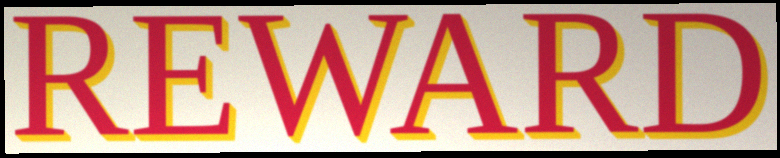
REWARD